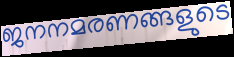
ജനനമരണങ്ങളുടെ